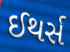
ઈથર્સ